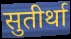
सुतीर्था